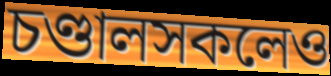
চণ্ডালসকলেও